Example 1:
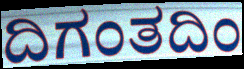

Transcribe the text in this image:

ದಿಗಂತದಿಂ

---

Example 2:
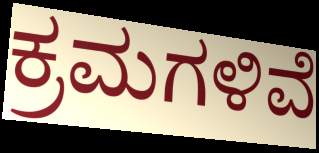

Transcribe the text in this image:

ಕ್ರಮಗಳಿವೆ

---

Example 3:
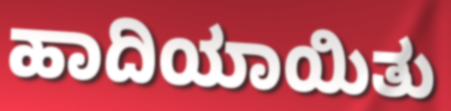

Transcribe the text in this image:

ಹಾದಿಯಾಯಿತು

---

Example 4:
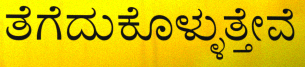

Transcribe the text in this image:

ತೆಗೆದುಕೊಳ್ಳುತ್ತೇವೆ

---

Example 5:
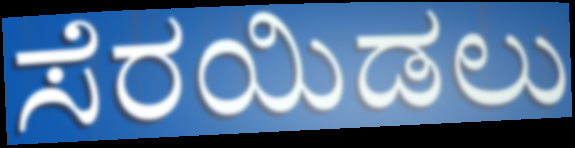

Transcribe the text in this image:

ಸೆರಯಿಡಲು